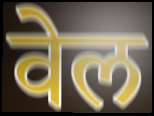
वेल